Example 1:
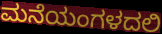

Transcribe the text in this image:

ಮನೆಯಂಗಳದಲಿ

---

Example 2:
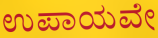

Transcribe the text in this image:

ಉಪಾಯವೇ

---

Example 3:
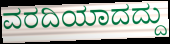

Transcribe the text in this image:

ವರದಿಯಾದದ್ದು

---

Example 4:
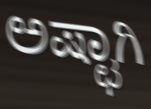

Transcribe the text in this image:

ಅಷ್ಟಾಗಿ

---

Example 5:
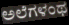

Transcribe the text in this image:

ಅಲೆಗಳಂಥ